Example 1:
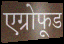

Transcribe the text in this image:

एग्रोफूड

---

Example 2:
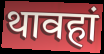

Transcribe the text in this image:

थावहां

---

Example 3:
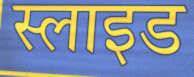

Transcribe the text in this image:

स्‍लाइड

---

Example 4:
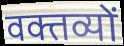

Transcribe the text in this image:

वक्तव्यों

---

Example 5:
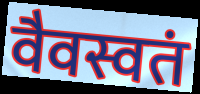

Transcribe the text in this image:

वैवस्वतं